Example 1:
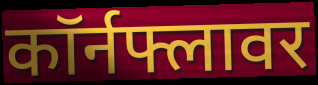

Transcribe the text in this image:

कॉर्नफ्लावर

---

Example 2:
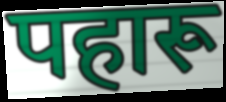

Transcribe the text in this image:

पहारू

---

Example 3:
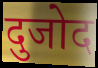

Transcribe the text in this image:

दुजोद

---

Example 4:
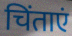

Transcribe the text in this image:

चिंताएं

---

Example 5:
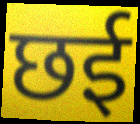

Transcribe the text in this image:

छई